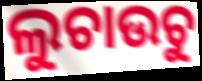
ଲୁଚାଉଚୁ